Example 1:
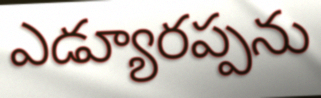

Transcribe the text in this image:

ఎడ్యూరప్పను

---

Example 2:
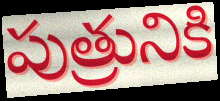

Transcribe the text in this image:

పుత్రునికి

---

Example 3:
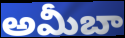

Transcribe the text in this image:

అమీబా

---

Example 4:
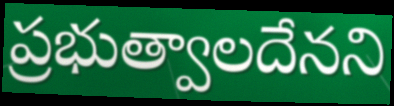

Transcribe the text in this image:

ప్రభుత్వాలదేనని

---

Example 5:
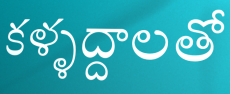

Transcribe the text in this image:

కళ్ళద్దాలతో